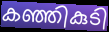
കഞ്ഞികുടി